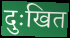
दुःखित